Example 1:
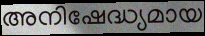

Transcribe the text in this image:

അനിഷേദ്ധ്യമായ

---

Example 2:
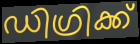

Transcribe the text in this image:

ഡിഗ്രിക്ക്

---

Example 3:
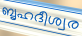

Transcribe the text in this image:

ബൃഹദീശ്വര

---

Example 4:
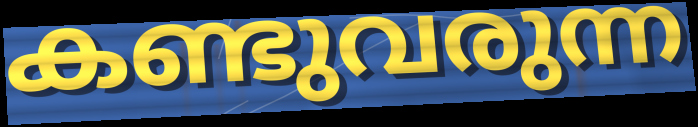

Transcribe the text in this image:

കണ്ടുവരുന്ന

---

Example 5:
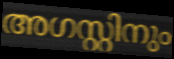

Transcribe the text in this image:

അഗസ്റ്റിനും